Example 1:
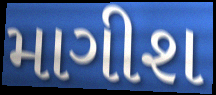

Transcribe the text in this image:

માગીશ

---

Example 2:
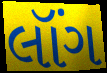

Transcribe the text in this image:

લૉંગ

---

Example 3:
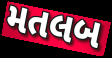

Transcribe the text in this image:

મતલબ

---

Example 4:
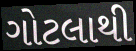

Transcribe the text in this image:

ગોટલાથી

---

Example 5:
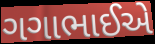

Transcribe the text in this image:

ગગાભાઈએ